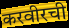
करवीरची